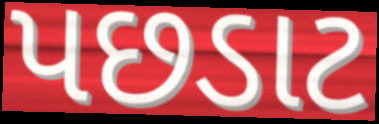
પછડાટ